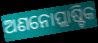
ଅଣନୋପ୍ଲାଷ୍ଟିକ